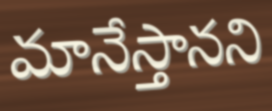
మానేస్తానని